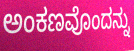
ಅಂಕಣವೊಂದನ್ನು